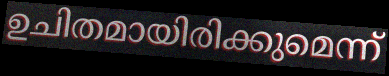
ഉചിതമായിരിക്കുമെന്ന്